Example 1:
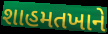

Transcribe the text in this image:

શાહમતખાને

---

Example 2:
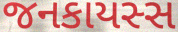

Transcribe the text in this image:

જનકાયસ્સ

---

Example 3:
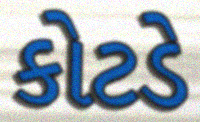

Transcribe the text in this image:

કોટડે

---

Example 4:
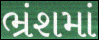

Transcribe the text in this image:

ભ્રંશમાં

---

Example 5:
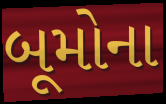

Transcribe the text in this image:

બૂમોના